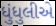
ધુંધુલીએ